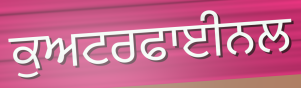
ਕੁਅਟਰਫਾਈਨਲ